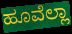
ಹೂವೆಲ್ಲಾ